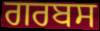
ਗਰਬਸ